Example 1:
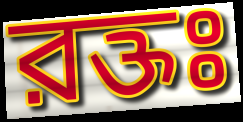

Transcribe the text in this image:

রক্তঃ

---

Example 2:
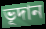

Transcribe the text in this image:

ভূদান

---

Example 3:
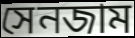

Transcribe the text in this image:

সেনজাম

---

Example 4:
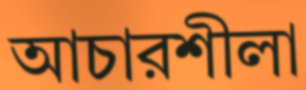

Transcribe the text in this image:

আচারশীলা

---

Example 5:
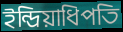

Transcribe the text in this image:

ইন্দ্রিয়াধিপতি